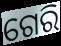
ଗେରି